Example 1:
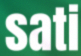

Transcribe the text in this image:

sati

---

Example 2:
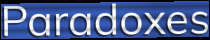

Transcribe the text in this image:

Paradoxes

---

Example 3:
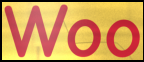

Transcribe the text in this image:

Woo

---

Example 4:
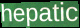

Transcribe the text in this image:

hepatic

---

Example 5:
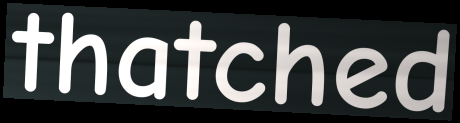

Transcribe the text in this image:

thatched